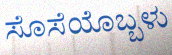
ಸೊಸೆಯೊಬ್ಬಳು